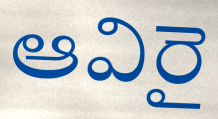
ఆవిరై